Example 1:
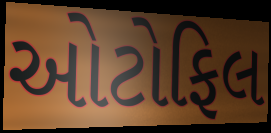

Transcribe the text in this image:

ઓટોફિલ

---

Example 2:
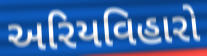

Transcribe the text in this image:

અરિયવિહારો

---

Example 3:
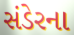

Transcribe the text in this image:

સંડેરના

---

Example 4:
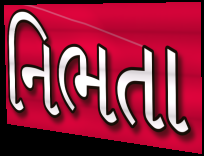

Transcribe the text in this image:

નિભતા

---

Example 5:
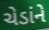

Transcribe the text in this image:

ચેડાંને